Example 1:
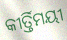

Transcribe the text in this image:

କୀର୍ତ୍ତିମୟୀ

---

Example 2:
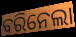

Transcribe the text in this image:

ବରିନେଲା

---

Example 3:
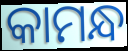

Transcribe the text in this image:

କାମନ୍ଧ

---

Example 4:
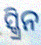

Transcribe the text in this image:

ସ୍କ୍ରିନ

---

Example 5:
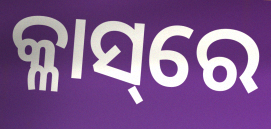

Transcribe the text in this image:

କ୍ଳାସ୍‌ରେ